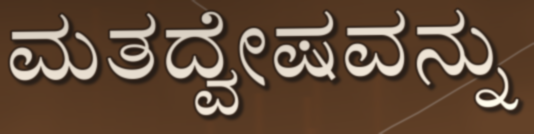
ಮತದ್ವೇಷವನ್ನು